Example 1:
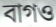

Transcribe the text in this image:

বাগও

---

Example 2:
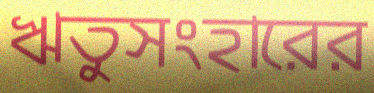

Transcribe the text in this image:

ঋতুসংহারের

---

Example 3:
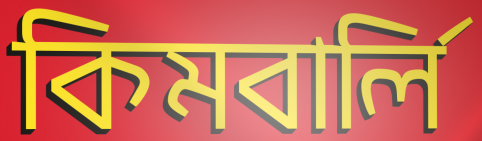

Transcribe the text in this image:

কিমবার্লি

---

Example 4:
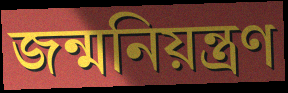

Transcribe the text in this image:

জন্মনিয়ন্ত্রণ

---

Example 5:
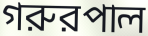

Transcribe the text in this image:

গরুরপাল